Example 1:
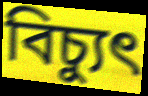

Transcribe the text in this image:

বিচ্যুৎ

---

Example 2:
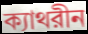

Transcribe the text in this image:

ক্যাথরীন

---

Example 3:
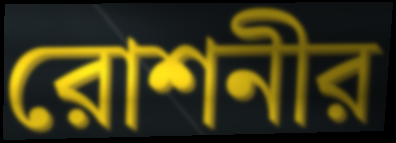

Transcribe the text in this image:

রোশনীর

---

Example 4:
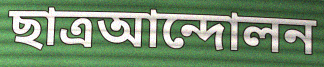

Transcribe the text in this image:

ছাত্রআন্দোলন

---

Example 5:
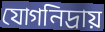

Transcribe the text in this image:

যোগনিদ্রায়